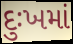
દુઃખમાં